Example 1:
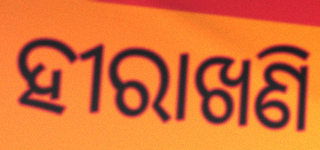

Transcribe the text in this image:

ହୀରାଖଣି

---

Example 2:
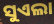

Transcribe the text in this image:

ସୁଏଲା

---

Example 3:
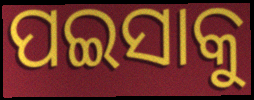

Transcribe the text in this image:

ପଇସାକୁ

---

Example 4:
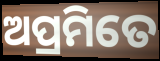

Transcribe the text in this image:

ଅପ୍ରମିତେ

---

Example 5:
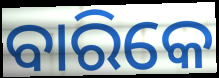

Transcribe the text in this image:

ବାରିକେ